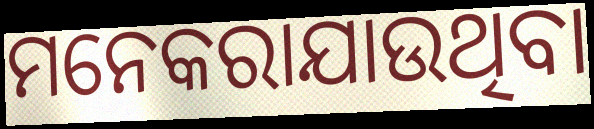
ମନେକରାଯାଉଥିବା